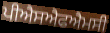
ਪੀਐਸਐਫਐਮਸੀ